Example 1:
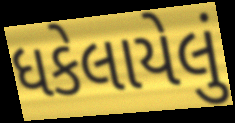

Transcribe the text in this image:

ધકેલાયેલું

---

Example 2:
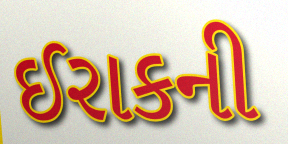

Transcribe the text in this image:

ઈરાકની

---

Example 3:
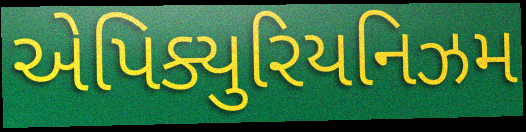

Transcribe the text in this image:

એપિક્યુરિયનિઝમ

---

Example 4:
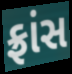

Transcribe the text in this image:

ફ્રાંસ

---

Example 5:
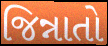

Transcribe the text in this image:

જિન્નાતો